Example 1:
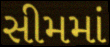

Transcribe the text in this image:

સીમમાં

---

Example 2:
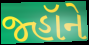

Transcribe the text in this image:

જ્હૉને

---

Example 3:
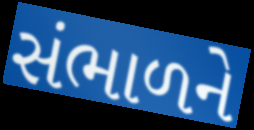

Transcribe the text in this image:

સંભાળને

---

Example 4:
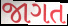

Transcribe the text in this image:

જાગત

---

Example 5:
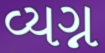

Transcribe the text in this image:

વ્યગ્ન